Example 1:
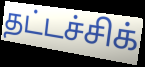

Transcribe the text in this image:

தட்டச்சிக்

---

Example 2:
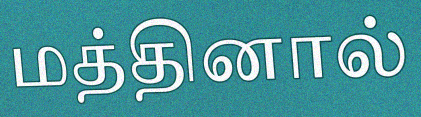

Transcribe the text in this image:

மத்தினால்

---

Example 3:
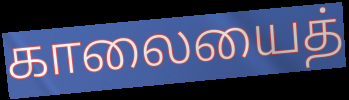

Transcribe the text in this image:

காலையைத்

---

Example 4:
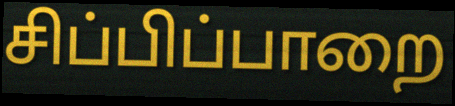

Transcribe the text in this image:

சிப்பிப்பாறை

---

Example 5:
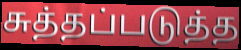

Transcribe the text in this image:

சுத்தப்படுத்த